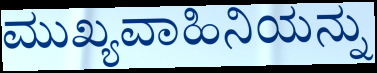
ಮುಖ್ಯವಾಹಿನಿಯನ್ನು